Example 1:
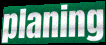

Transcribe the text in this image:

planing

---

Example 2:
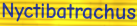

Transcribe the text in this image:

Nyctibatrachus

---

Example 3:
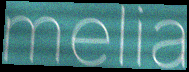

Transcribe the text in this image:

melia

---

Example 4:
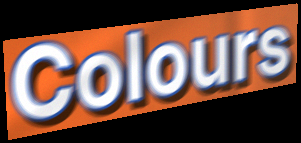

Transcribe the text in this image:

Colours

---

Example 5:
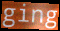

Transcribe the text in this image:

ging